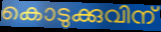
കൊടുക്കുവിന്